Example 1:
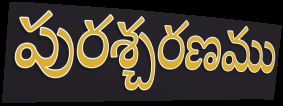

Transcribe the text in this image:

పురశ్చరణము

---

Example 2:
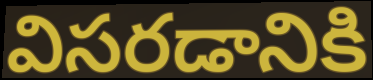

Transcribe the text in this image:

విసరడానికి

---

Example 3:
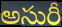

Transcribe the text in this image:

అసురీ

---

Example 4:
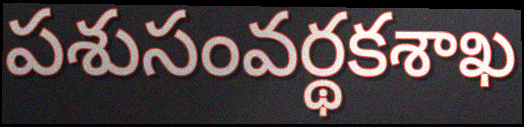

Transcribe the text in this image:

పశుసంవర్థకశాఖ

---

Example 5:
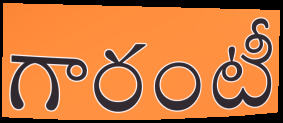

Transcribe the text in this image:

గారంటీ